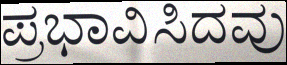
ಪ್ರಭಾವಿಸಿದವು